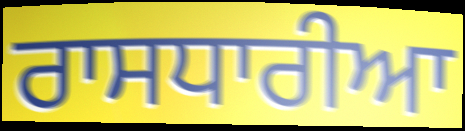
ਰਾਸਧਾਰੀਆ